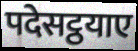
पदेसट्ठयाए